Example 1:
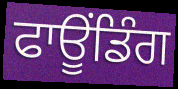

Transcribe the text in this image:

ਫਾਊਂਡਿੰਗ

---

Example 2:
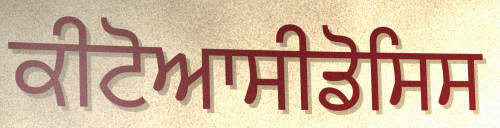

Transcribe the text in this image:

ਕੀਟੋਆਸੀਡੋਸਿਸ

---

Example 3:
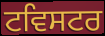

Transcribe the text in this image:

ਟਵਿਸਟਰ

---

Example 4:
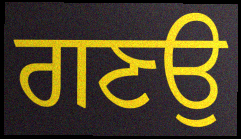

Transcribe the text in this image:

ਗਣਉ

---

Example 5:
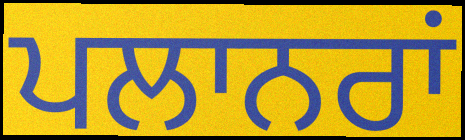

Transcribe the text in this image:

ਪਲਾਨਰਾਂ